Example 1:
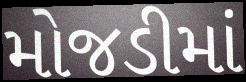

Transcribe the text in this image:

મોજડીમાં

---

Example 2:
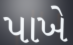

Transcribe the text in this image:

પાખે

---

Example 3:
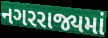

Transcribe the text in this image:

નગરરાજ્યમાં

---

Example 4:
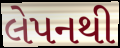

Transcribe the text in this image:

લેપનથી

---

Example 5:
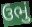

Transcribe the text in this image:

ઉભું